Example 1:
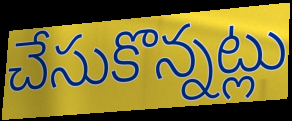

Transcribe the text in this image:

చేసుకొన్నట్లు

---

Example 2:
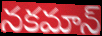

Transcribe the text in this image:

నకమాన్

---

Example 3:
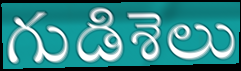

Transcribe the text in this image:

గుడిశెలు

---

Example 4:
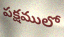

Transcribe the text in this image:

పక్షములో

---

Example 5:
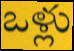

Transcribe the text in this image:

ఒళ్లు